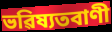
ভৱিষ্যতবাণী